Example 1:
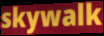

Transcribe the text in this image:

skywalk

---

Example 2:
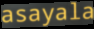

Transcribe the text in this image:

asayala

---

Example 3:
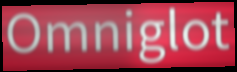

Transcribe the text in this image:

Omniglot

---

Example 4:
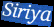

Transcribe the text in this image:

Siriya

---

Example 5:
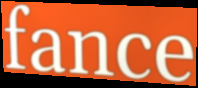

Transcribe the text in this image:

fance